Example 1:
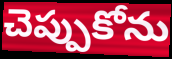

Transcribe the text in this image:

చెప్పుకోను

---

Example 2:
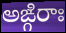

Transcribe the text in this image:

అఙ్గిరాః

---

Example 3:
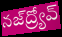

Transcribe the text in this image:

నజ్‌ద్ర్యోవ్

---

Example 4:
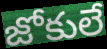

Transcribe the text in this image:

జోకులే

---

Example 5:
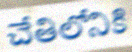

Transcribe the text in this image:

చేతిలోనికి